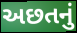
અછતનું